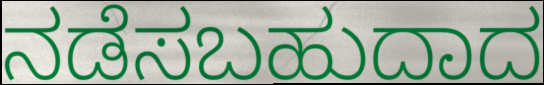
ನಡೆಸಬಹುದಾದ